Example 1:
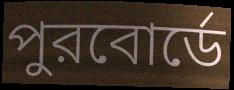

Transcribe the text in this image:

পুরবোর্ডে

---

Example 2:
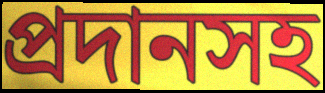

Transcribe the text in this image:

প্রদানসহ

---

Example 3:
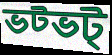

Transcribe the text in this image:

ভট্ভট্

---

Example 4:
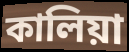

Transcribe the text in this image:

কালিয়া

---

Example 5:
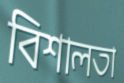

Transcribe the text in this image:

বিশালতা